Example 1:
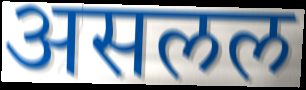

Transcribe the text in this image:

असलल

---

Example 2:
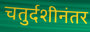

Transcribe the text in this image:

चतुर्दशीनंतर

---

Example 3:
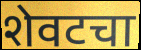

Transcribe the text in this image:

शेवटचा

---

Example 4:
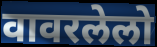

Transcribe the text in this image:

वावरलेलो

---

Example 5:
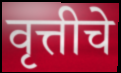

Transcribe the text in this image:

वृत्तीचे